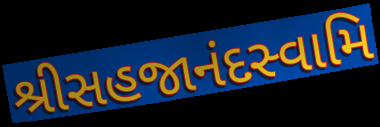
શ્રીસહજાનંદસ્વામિ